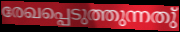
രേഖപ്പെടുത്തുന്നതു്